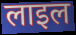
लाइल